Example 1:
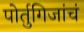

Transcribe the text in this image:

पोर्तुगिजांचं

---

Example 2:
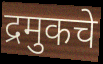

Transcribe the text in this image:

द्रमुकचे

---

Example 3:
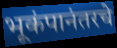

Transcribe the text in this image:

भूकंपानंतरचे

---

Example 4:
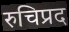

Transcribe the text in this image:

रुचिप्रद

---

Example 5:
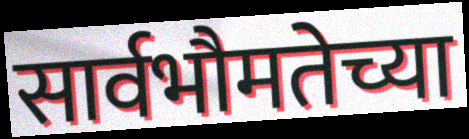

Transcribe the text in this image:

सार्वभौमतेच्या